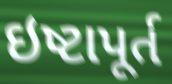
ઇષ્ટાપૂર્ત